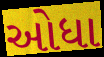
ઓધા